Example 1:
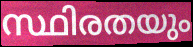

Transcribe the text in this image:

സ്ഥിരതയും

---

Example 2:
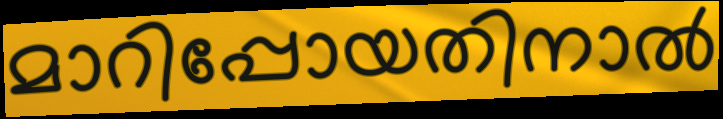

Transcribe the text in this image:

മാറിപ്പോയതിനാൽ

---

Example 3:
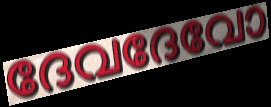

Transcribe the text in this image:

ദേവദേവോ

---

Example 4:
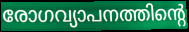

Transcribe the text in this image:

രോഗവ്യാപനത്തിന്റെ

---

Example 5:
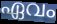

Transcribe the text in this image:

ഏവം